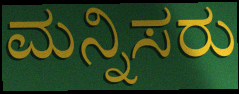
ಮನ್ನಿಸರು